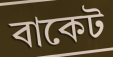
বাকেট